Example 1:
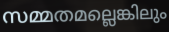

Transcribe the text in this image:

സമ്മതമല്ലെങ്കിലും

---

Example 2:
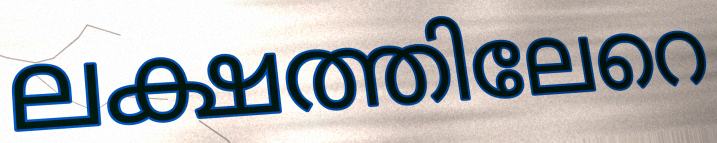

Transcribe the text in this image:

ലക്ഷത്തിലേറെ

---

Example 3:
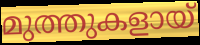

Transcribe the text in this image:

മുത്തുകളായ്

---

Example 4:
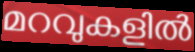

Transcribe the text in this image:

മറവുകളിൽ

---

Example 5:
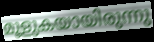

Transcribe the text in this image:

മൂളുകയായിരുന്നു